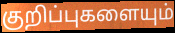
குறிப்புகளையும்